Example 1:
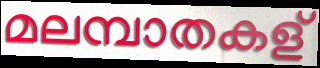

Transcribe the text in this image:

മലമ്പാതകള്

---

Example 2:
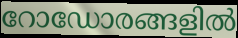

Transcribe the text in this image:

റോഡോരങ്ങളിൽ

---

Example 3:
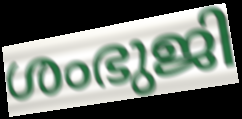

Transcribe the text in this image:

ശംഭുജി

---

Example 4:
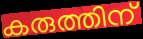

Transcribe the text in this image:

കരുത്തിന്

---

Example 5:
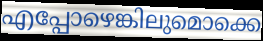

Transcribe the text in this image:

എപ്പോഴെങ്കിലുമൊക്കെ